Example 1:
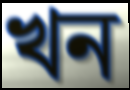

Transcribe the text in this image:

খন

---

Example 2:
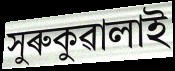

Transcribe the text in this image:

সুৰুকুৱালাই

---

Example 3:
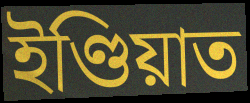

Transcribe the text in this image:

ইণ্ডিয়াত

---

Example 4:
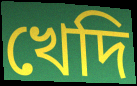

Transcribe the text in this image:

খেদি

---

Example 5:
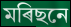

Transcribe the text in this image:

মৰিছনে